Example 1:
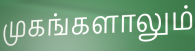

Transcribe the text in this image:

முகங்களாலும்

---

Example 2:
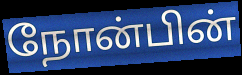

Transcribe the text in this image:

நோன்பின்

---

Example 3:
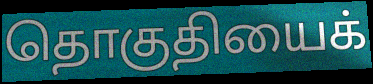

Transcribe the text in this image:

தொகுதியைக்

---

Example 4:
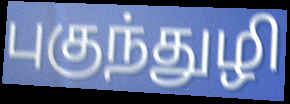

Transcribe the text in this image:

புகுந்துழி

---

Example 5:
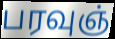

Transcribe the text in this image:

பரவுஞ்